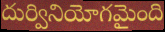
దుర్వినియోగమైంది